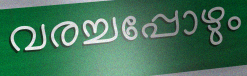
വരച്ചപ്പോഴും